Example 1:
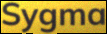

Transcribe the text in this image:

Sygma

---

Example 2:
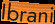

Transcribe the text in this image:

Ibrani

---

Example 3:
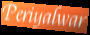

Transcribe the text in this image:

Periyalwar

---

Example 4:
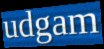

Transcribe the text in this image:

udgam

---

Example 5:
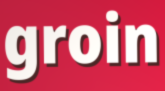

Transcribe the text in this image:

groin